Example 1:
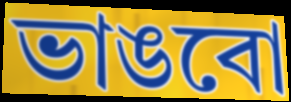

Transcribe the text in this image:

ভাঙবো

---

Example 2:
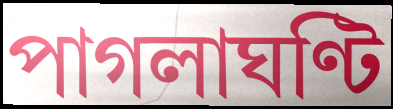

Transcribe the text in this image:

পাগলাঘণ্টি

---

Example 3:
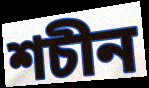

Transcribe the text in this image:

শচীন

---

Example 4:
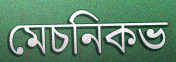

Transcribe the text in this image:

মেচনিকভ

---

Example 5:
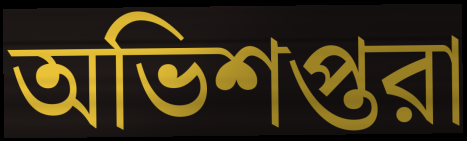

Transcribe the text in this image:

অভিশপ্তরা